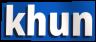
khun